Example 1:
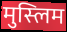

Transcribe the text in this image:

मुस्‍लिम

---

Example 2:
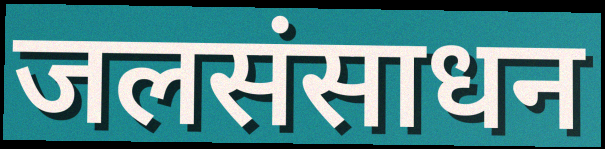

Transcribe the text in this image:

जलसंसाधन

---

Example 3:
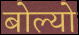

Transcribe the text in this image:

बोल्यो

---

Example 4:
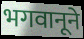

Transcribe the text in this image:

भगवानूने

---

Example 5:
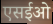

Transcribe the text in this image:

एसईओ